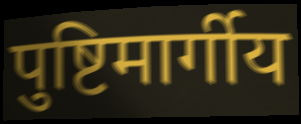
पुष्टिमार्गीय